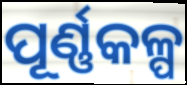
ପୂର୍ଣ୍ଣକଳ୍ପ